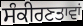
ਸੰਕੀਰਣਤਾਵਾਂ